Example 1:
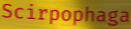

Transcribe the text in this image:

Scirpophaga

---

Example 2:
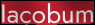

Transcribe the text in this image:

Iacobum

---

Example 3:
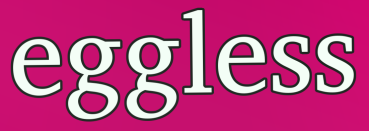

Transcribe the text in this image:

eggless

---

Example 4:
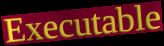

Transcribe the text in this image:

Executable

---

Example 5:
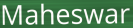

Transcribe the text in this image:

Maheswar